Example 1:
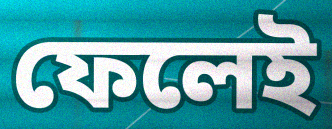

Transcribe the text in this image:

ফেলেই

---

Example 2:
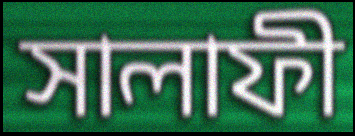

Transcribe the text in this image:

সালাফী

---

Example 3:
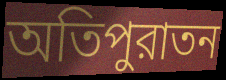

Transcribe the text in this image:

অতিপুরাতন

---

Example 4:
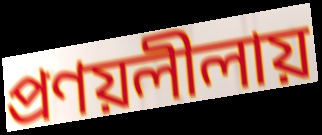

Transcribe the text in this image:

প্রণয়লীলায়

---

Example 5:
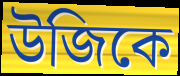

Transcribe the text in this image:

উজিকে